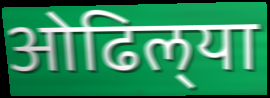
ओढिल्या